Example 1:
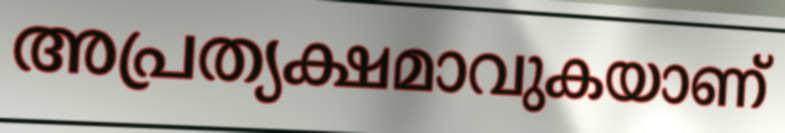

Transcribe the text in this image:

അപ്രത്യക്ഷമാവുകയാണ്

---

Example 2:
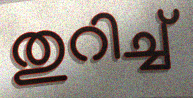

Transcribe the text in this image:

തുറിച്ച്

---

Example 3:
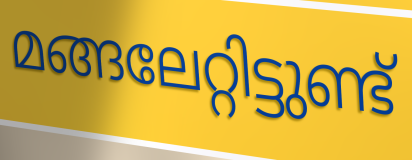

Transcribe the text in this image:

മങ്ങലേറ്റിട്ടുണ്ട്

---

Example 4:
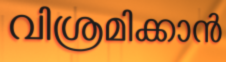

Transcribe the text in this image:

വിശ്രമിക്കാൻ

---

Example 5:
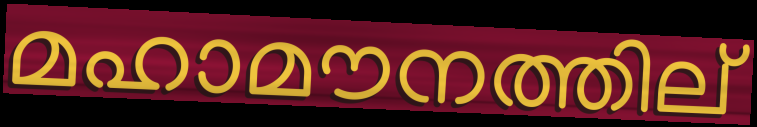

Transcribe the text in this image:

മഹാമൗനത്തില്